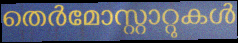
തെർമോസ്റ്റാറ്റുകൾ